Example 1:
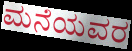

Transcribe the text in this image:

ಮನೆಯವರ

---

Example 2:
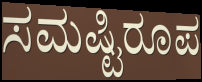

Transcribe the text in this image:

ಸಮಷ್ಟಿರೂಪ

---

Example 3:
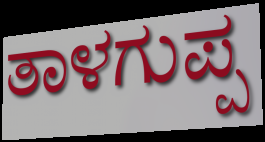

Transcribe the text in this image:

ತಾಳಗುಪ್ಪ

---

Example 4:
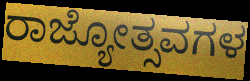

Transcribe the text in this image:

ರಾಜ್ಯೋತ್ಸವಗಳ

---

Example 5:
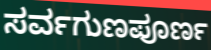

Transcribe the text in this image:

ಸರ್ವಗುಣಪೂರ್ಣ